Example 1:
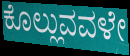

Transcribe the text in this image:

ಕೊಲ್ಲುವವಳೇ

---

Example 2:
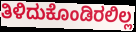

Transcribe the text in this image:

ತಿಳಿದುಕೊಂಡಿರಲಿಲ್ಲ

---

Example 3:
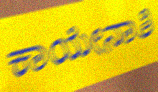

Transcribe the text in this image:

ಕಾಯೇನಾತಿ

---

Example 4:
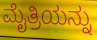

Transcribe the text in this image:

ಮೈತ್ರಿಯನ್ನು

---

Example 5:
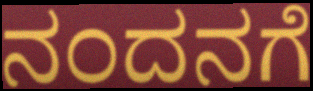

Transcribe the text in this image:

ನಂದನಗೆ